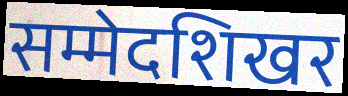
सम्मेदशिखर